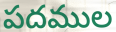
పదముల